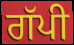
ਗੱਪੀ